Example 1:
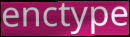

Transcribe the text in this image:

enctype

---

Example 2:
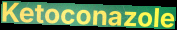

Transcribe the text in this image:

Ketoconazole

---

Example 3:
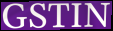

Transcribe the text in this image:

GSTIN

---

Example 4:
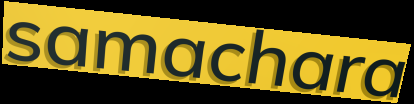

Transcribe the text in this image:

samachara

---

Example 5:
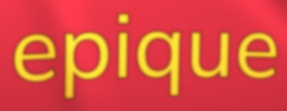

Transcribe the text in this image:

epique